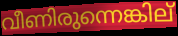
വീണിരുന്നെങ്കില്